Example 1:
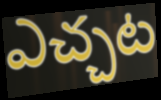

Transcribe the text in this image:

ఎచ్చట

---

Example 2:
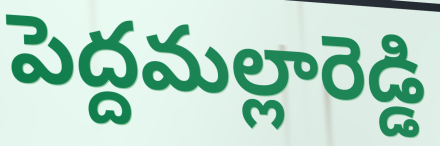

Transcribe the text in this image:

పెద్దమల్లారెడ్డి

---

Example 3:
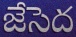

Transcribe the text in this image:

జేసెద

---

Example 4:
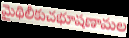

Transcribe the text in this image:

మైథిలీకుచభూషణామల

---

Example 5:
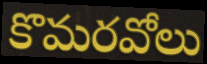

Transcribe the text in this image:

కొమరవోలు